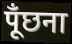
पूँछना